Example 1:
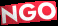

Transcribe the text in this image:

NGO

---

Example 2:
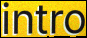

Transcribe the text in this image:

intro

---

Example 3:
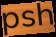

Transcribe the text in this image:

psh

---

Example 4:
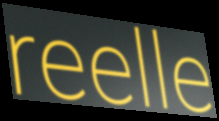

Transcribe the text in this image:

reelle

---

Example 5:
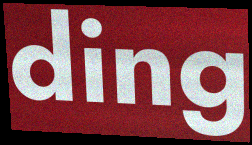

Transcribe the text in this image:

ding